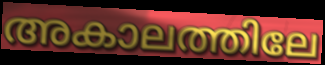
അകാലത്തിലേ